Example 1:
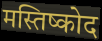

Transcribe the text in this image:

मस्तिष्कोद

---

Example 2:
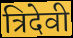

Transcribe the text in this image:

त्रिदेवी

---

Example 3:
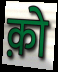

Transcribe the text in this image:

क़ो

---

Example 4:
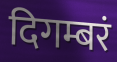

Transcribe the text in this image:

दिगम्बरं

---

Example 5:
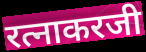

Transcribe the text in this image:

रत्नाकरजी